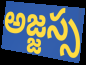
అజ్జస్స